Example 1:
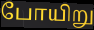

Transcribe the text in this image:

போயிறு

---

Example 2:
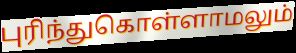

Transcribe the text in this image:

புரிந்துகொள்ளாமலும்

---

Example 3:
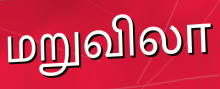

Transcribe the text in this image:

மறுவிலா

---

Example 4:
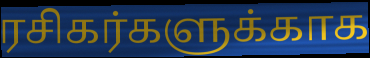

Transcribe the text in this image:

ரசிகர்களுக்காக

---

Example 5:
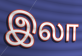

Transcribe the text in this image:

இலா